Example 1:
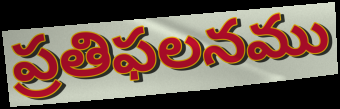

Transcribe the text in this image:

ప్రతిఫలనము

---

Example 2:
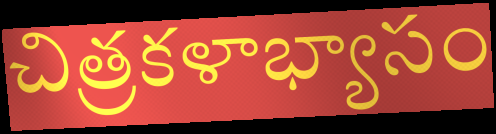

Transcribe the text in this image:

చిత్రకళాభ్యాసం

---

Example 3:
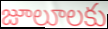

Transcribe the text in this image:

జూలూలకు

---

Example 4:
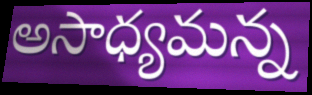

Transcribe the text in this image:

అసాధ్యమన్న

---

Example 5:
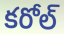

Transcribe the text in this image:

కరోల్